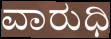
ವಾರುಧಿ